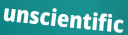
unscientific